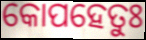
କୋପହେତୁଃ